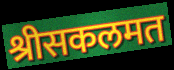
श्रीसकलमत